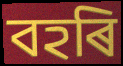
বহৰি